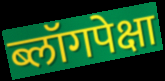
ब्लॉगपेक्षा